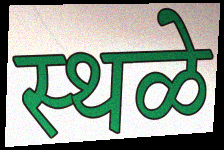
स्थळे